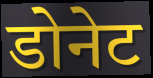
डोनेट